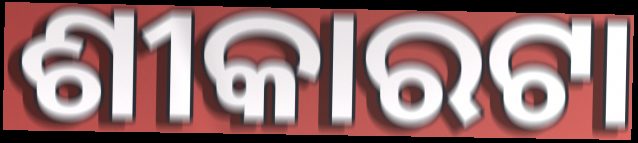
ଶୀକାରଟା